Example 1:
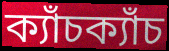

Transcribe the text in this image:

ক্যাঁচক্যাঁচ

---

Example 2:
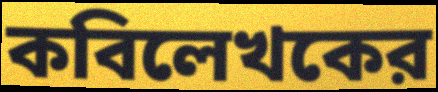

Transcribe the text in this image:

কবিলেখকের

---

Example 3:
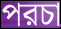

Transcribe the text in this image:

পরচা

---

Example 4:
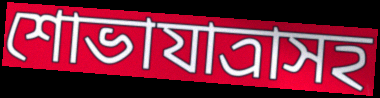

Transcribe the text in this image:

শোভাযাত্রাসহ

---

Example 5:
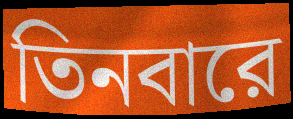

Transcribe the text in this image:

তিনবারে